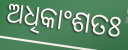
ଅଧିକାଂଶତଃ